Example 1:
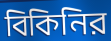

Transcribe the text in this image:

বিকিনির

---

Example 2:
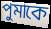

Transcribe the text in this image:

পুমাকে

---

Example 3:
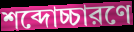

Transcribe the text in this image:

শব্দোচ্চারণে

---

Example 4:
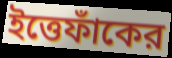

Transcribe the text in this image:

ইত্তেফাঁকের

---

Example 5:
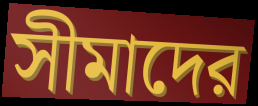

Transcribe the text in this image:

সীমাদের